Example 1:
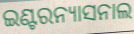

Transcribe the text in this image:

ଇଣ୍ଟରନ୍ୟାସନାଲ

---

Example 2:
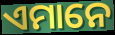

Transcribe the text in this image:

ଏମାନେ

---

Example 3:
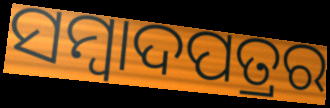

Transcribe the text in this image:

ସମ୍ବାଦପତ୍ରର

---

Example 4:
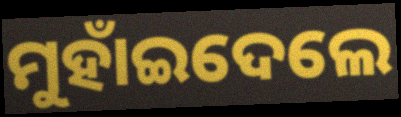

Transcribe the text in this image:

ମୁହାଁଇଦେଲେ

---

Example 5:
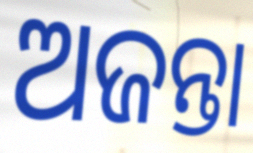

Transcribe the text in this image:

ଅଜନ୍ତା